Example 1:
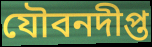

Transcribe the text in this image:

যৌবনদীপ্ত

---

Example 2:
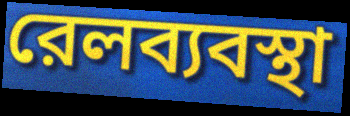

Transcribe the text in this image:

রেলব্যবস্থা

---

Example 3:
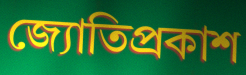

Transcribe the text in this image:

জ্যোতিপ্রকাশ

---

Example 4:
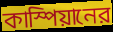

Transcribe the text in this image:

কাস্পিয়ানের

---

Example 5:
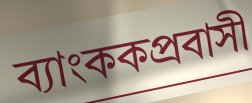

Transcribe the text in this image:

ব্যাংককপ্রবাসী